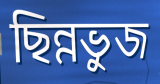
ছিন্নভুজ